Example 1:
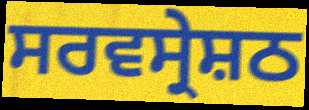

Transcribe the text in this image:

ਸਰਵਸ੍ਰੇਸ਼ਠ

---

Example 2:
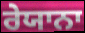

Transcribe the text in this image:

ਰੇਯਾਨਾ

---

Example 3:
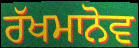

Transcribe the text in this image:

ਰੱਖਮਾਨੋਵ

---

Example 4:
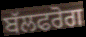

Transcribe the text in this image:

ਬੱਲਫਰੋਗ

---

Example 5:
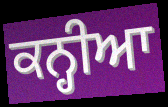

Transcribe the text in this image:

ਕਨ੍ਹੀਆ